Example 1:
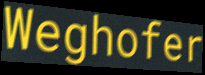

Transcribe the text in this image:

Weghofer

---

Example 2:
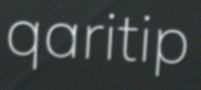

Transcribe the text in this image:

qaritip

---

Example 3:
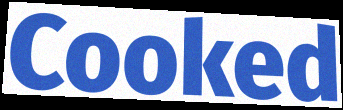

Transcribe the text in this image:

Cooked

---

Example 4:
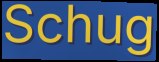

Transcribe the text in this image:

Schug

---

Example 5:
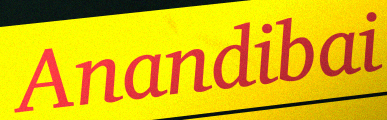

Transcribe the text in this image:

Anandibai